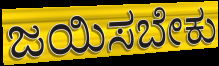
ಜಯಿಸಬೇಕು